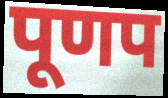
पूणप